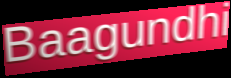
Baagundhi